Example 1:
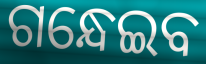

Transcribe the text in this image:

ଗନ୍ଧେଇବ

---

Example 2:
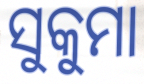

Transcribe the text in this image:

ସୁକୁମା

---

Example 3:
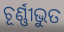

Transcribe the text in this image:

ଚୂର୍ଣ୍ଣୀଭୁତ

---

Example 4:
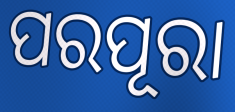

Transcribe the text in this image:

ପରପୂରା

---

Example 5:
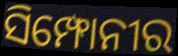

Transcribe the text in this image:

ସିମ୍ଫୋନୀର